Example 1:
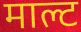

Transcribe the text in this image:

माल्ट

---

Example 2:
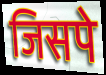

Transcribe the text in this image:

जिसपे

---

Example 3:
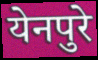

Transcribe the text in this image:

येनपुरे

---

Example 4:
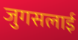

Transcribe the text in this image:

जुगसलाई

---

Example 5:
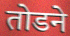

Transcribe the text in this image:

तोडने